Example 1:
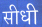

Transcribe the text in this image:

सीधी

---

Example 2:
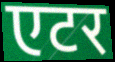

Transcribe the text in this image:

एटर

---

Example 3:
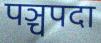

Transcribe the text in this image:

पञ्चपदा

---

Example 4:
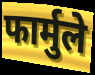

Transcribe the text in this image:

फार्मुले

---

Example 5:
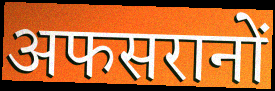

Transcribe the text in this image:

अफसरानों